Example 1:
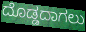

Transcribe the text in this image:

ದೊಡ್ಡದಾಗಲು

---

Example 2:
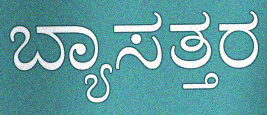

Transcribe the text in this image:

ಬ್ಯಾಸತ್ತರ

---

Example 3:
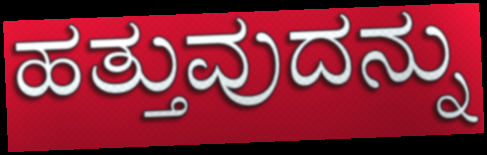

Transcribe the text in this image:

ಹತ್ತುವುದನ್ನು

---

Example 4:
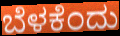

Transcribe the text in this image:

ಬೆಳಕೆಂದು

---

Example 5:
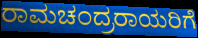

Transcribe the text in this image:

ರಾಮಚಂದ್ರರಾಯರಿಗೆ